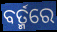
ବର୍ତ୍ମରେ